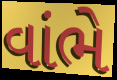
વાંભે